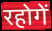
रहोगें